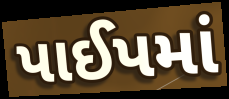
પાઈપમાં